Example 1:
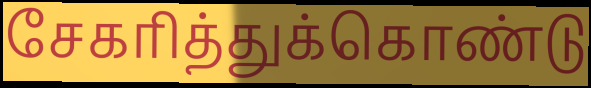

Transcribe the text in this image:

சேகரித்துக்கொண்டு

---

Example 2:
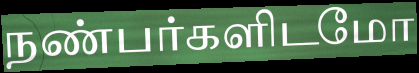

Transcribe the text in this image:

நண்பர்களிடமோ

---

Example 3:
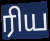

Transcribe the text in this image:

ரிய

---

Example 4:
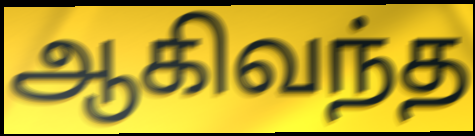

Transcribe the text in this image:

ஆகிவந்த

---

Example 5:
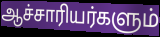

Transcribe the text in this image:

ஆச்சாரியர்களும்